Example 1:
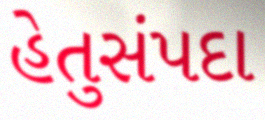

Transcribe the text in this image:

હેતુસંપદા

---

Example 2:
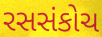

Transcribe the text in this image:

રસસંકોચ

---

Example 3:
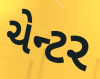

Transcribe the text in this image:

ચેન્ટર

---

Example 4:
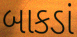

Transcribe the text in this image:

બાકડાં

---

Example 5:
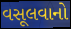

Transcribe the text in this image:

વસૂલવાનો